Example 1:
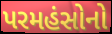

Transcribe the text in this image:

પરમહંસોનો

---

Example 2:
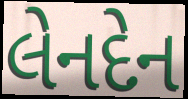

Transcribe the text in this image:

લેનદેન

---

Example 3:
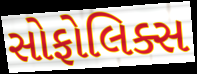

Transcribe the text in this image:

સોફોલિક્સ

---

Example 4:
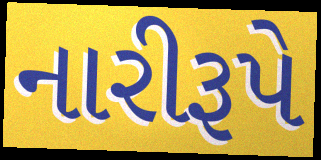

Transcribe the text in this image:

નારીરૂપે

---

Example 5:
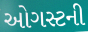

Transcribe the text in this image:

ઓગસ્ટની